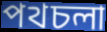
পথচলা